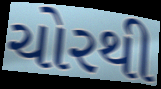
ચોરથી